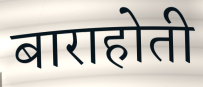
बाराहोती